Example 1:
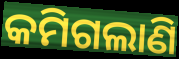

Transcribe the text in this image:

କମିଗଲାଣି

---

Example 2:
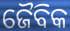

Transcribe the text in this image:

ଜୈବିକ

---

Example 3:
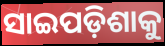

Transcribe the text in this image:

ସାଇପଡ଼ିଶାକୁ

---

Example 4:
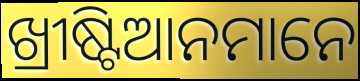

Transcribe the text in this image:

ଖ୍ରୀଷ୍ଟିଆନମାନେ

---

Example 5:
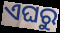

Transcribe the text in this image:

ଏଘରୁ